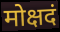
मोक्षदं